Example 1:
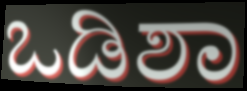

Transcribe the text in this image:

ಒಡಿಶಾ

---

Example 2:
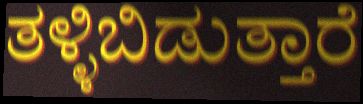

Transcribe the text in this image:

ತಳ್ಳಿಬಿಡುತ್ತಾರೆ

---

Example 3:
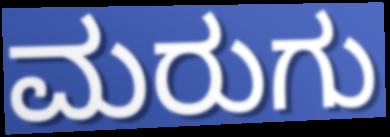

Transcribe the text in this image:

ಮರುಗು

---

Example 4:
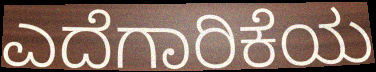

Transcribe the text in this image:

ಎದೆಗಾರಿಕೆಯ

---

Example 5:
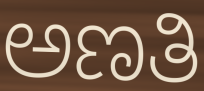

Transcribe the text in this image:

ಅಣತಿ